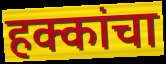
हक्कांचा